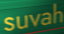
suvah